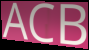
ACB